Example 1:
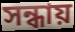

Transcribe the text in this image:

সন্ধায়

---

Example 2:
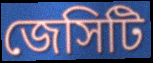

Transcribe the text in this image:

জেসিটি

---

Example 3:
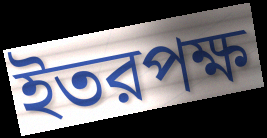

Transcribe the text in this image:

ইতরপক্ষ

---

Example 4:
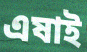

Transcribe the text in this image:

এষাই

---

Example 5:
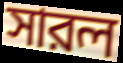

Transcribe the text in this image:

সারল